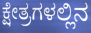
ಕ್ಷೇತ್ರಗಳಲ್ಲಿನ